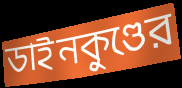
ডাইনকুণ্ডের